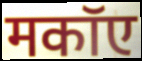
मकॉए